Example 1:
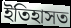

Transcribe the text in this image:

ইতিহাসত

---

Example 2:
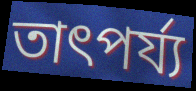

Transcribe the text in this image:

তাৎপৰ্য্য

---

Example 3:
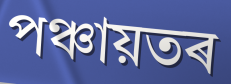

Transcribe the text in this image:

পঞ্চায়তৰ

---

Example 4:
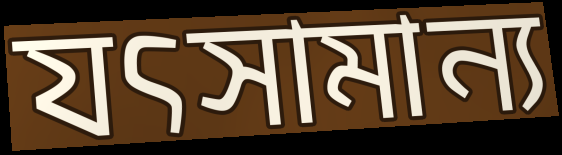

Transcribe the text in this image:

যৎসামান্য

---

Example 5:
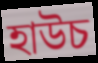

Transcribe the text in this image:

হাউচ